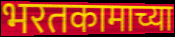
भरतकामाच्या